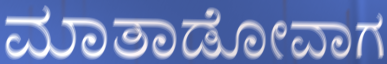
ಮಾತಾಡೋವಾಗ